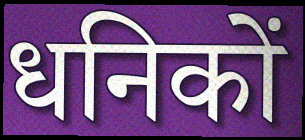
धनिकों